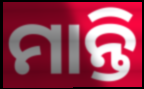
ମାନ୍ତି